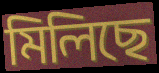
মিলিছে